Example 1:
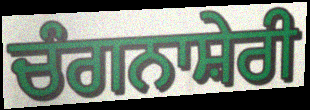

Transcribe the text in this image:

ਚੰਗਨਾਸ਼ੇਰੀ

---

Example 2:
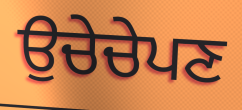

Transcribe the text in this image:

ਉਚੇਚੇਪਣ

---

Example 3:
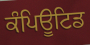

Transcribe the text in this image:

ਕੰਪਿਊਟਿਡ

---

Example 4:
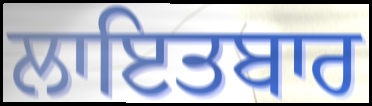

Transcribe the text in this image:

ਲਾਇਤਬਾਰ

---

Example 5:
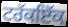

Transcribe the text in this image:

ਟਰੱਕਇੱਕ